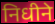
निधीने